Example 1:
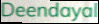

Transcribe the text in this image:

Deendayal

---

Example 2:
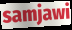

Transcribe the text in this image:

samjawi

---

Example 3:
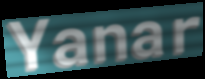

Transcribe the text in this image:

Yanar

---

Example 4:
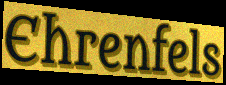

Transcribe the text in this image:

Ehrenfels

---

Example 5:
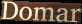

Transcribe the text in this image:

Domar